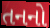
તનનો